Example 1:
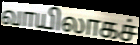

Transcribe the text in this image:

வாயிலாகச்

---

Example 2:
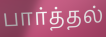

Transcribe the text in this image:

பார்த்தல்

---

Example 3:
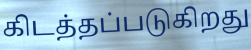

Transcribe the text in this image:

கிடத்தப்படுகிறது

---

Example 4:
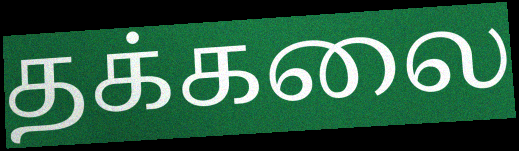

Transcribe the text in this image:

தக்கலை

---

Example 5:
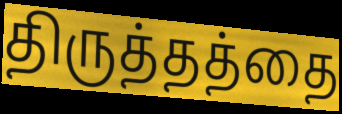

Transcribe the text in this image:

திருத்தத்தை